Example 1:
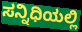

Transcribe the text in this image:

ಸನ್ನಿಧಿಯಲ್ಲಿ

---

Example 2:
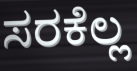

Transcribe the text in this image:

ಸರಕೆಲ್ಲ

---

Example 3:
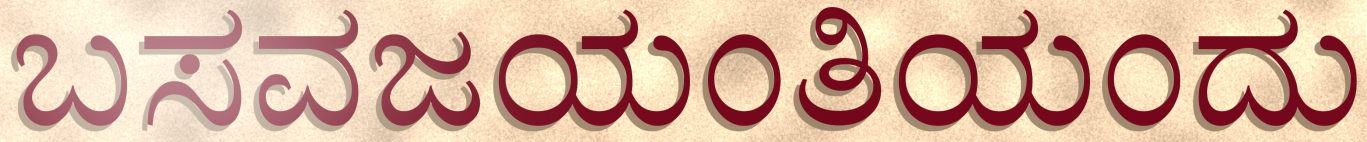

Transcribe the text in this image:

ಬಸವಜಯಂತಿಯಂದು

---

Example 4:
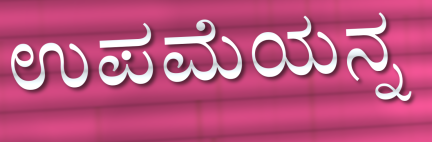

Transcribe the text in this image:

ಉಪಮೆಯನ್ನ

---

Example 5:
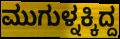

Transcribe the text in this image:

ಮುಗುಳ್ನಕ್ಕಿದ್ದ